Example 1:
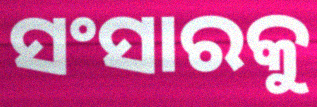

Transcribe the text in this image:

ସଂସାରକୁ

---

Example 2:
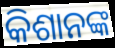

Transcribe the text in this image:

କିଶାନଙ୍କ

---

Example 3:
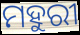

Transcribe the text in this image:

ମହୁରୀ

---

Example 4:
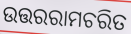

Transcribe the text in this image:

ଉତ୍ତରରାମଚରିତ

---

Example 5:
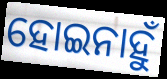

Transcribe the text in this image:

ହୋଇନାହୁଁ